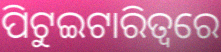
ପିଟୁଇଟାରିତ୍ୱରେ